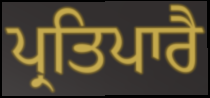
ਪ੍ਰਤਿਪਾਰੈ